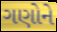
ગણોને